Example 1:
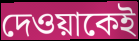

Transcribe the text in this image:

দেওয়াকেই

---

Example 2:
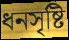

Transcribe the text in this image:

ধনসৃষ্টি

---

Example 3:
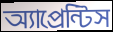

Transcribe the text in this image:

অ্যাপ্রেন্টিস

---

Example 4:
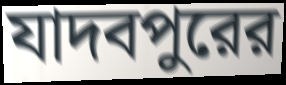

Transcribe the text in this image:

যাদবপুরের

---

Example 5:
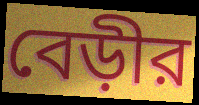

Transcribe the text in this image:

বেড়ীর